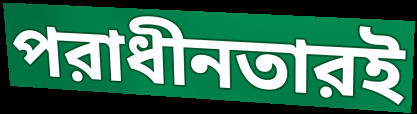
পরাধীনতারই